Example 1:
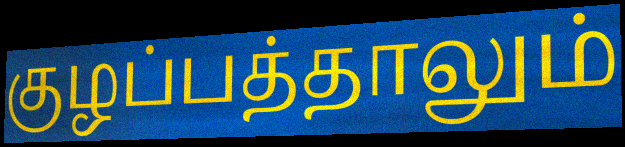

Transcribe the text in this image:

குழப்பத்தாலும்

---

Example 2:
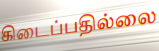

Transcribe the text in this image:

கிடைப்பதில்லை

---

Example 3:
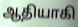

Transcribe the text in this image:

ஆதியாகி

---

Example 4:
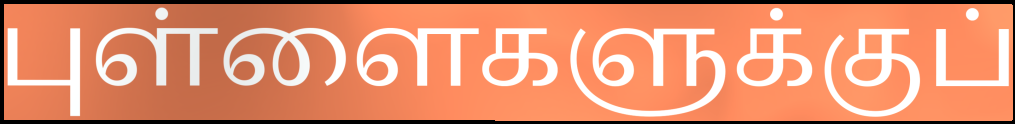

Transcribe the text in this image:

புள்ளைகளுக்குப்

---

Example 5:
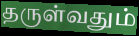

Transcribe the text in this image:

தருள்வதும்